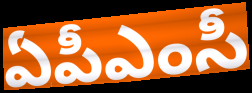
ఏపీఎంసీ